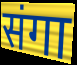
संगा